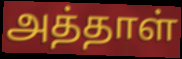
அத்தாள்